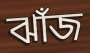
ঝাঁজ